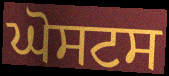
ਘੋਸਟਸ